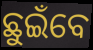
ଛୁଇଁବେ